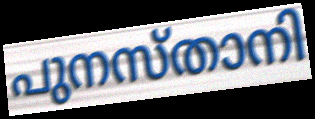
പുനസ്താനി